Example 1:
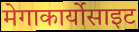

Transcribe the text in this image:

मेगाकार्योसाइट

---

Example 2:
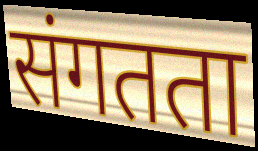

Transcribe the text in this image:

संगतता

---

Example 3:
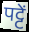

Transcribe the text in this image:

पट्टें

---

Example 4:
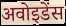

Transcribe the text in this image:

अवोइडेंस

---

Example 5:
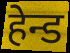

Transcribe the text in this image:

हेन्ड